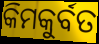
କିମକୁର୍ବତ